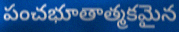
పంచభూతాత్మకమైన